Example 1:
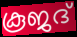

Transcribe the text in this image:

കൂജദ്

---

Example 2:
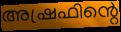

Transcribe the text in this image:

അഷ്രഫിന്റെ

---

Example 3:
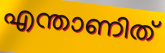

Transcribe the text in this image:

എന്താണിത്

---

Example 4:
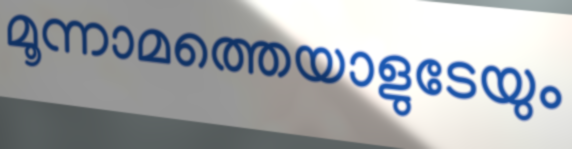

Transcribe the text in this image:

മൂന്നാമത്തെയാളുടേയും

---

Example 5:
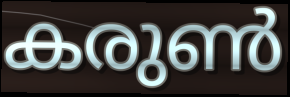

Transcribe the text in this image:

കരുൺ